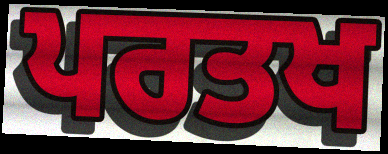
ਪਰਤਖ